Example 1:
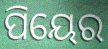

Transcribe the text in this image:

ପିୟେର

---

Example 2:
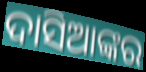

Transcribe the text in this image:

ଦାସିଆଙ୍କର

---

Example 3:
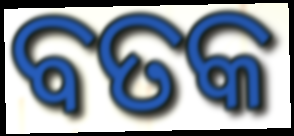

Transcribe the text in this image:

ବତକ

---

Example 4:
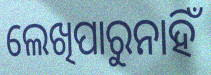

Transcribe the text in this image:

ଲେଖିପାରୁନାହିଁ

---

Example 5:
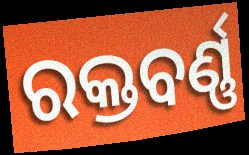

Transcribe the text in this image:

ରକ୍ତବର୍ଣ୍ଣ